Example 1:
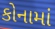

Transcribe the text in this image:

કોનામાં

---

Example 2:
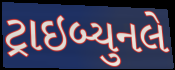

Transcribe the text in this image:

ટ્રાઇબ્યુનલે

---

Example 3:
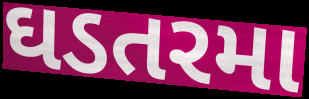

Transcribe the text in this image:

ઘડતરમા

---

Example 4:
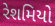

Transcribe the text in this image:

રેશમિયો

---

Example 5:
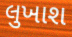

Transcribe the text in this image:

લુખાશ